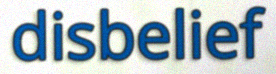
disbelief